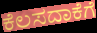
ಕೆಲಸದಾಕೆಗೆ